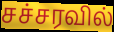
சச்சரவில்